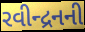
રવીન્દ્રનની